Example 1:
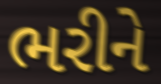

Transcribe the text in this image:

ભરીને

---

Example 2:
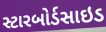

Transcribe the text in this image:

સ્ટારબોર્ડસાઇડ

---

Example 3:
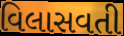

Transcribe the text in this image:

વિલાસવતી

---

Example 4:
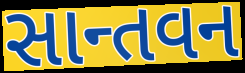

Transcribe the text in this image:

સાન્તવન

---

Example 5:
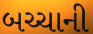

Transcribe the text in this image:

બચ્ચાની